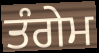
ਤੰਗੇਮ